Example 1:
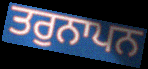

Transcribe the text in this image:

ਤਰੁਨਾਪਨ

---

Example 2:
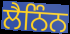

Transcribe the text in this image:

ਲੈਨਿੰਨ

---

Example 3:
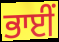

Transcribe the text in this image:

ਭਾਈੰ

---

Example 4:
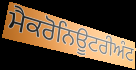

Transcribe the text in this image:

ਮੈਕਰੋਨਿਊਟਰੀਅੰਟ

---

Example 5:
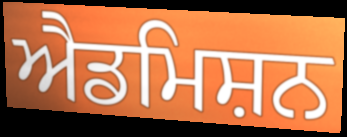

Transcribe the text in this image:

ਐਡਮਿਸ਼ਨ